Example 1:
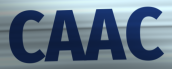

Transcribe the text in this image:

CAAC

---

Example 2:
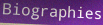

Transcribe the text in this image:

Biographies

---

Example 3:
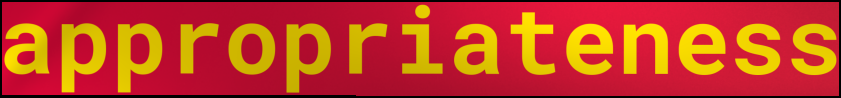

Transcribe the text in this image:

appropriateness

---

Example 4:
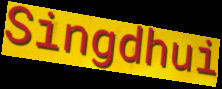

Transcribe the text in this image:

Singdhui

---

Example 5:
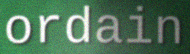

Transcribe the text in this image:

ordain